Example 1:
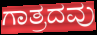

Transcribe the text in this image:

ಗಾತ್ರದವು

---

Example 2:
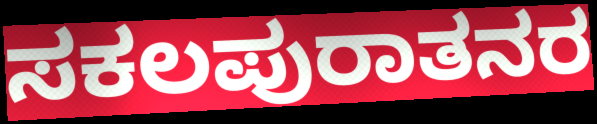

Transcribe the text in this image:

ಸಕಲಪುರಾತನರ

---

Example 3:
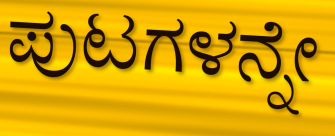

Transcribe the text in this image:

ಪುಟಗಳನ್ನೇ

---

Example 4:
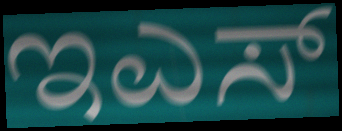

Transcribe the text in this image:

ಇಎಸ್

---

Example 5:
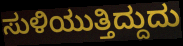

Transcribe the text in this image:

ಸುಳಿಯುತ್ತಿದ್ದುದು